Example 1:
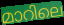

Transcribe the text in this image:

മാറിലെ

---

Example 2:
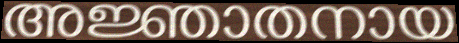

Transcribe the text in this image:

അജ്ഞാതനായ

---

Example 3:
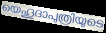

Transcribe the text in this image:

യെഹൂദാപുത്രിയുടെ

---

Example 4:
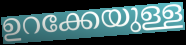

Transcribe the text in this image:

ഉറക്കേയുള്ള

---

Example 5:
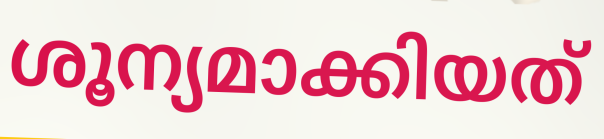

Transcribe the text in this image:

ശൂന്യമാക്കിയത്